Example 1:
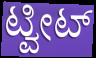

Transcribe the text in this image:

ಟ್ವೀಟ್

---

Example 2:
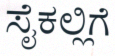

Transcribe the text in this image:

ಸೈಕಲ್ಲಿಗೆ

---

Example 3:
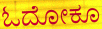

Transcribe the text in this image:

ಓದೋಕೂ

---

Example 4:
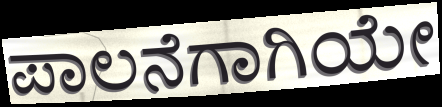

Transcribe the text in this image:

ಪಾಲನೆಗಾಗಿಯೇ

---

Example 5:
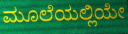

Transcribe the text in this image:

ಮೂಲೆಯಲ್ಲಿಯೇ